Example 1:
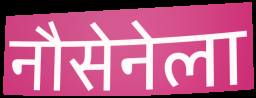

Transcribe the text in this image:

नौसेनेला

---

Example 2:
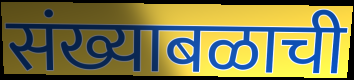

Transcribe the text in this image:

संख्याबळाची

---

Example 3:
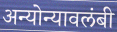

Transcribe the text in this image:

अन्योन्यावलंबी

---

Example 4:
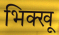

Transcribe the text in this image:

भिक्‍खू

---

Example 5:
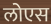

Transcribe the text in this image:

लोएस